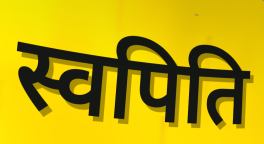
स्वपिति